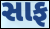
સાફ